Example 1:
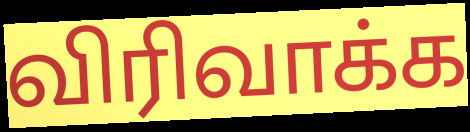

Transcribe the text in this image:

விரிவாக்க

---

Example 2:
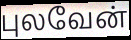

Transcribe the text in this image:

புலவேன்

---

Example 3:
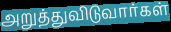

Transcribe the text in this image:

அறுத்துவிடுவார்கள்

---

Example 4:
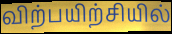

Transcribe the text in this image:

விற்பயிற்சியில்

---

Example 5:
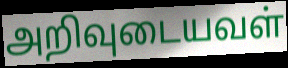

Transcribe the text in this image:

அறிவுடையவள்